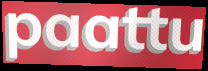
paattu